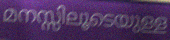
മനസ്സിലൂടെയുള്ള